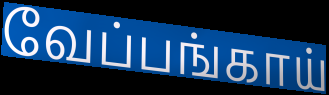
வேப்பங்காய்